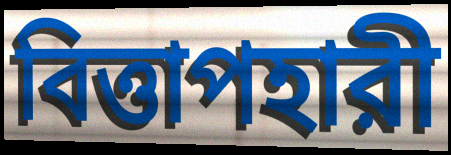
বিত্তাপহারী